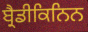
ਬ੍ਰੈਡੀਕਿਨਿਨ